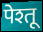
पेश्तू